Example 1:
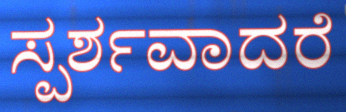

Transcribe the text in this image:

ಸ್ಪರ್ಶವಾದರೆ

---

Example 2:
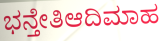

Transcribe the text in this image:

ಭನ್ತೇತಿಆದಿಮಾಹ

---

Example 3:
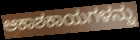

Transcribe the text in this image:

ಆಕಾಶಕಾಯಗಳನ್ನು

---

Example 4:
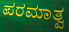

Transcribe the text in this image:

ಪರಮಾತ್ವ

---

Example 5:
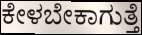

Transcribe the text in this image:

ಕೇಳಬೇಕಾಗುತ್ತೆ